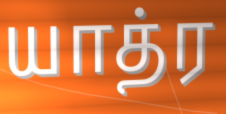
யாத்ர